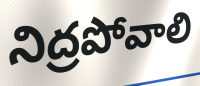
నిద్రపోవాలి